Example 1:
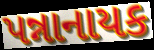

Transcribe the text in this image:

પન્નાનાયક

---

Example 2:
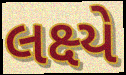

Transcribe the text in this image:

લક્ષ્યે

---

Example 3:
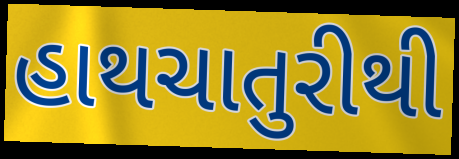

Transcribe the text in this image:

હાથચાતુરીથી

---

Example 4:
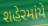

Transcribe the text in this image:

શહેરમાંયે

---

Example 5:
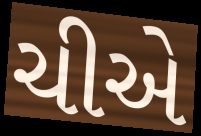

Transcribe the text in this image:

ચીએ